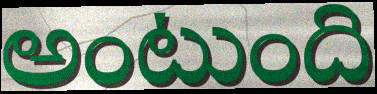
అంటుంది